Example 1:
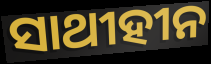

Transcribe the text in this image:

ସାଥୀହୀନ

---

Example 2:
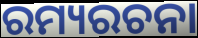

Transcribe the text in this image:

ରମ୍ୟରଚନା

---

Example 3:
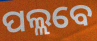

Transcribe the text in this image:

ପଲ୍ଲବେ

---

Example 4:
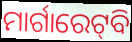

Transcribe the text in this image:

ମାର୍ଗାରେଟ୍‌ବି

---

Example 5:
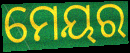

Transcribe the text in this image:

ମେୟର